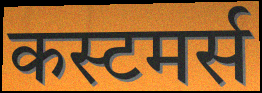
कस्‍टमर्स